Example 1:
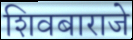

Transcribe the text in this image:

शिवबाराजे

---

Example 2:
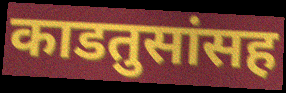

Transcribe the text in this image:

काडतुसांसह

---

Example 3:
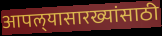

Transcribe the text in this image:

आपल्यासारख्यांसाठी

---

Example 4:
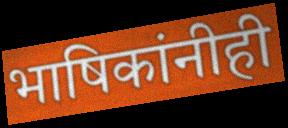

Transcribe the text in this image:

भाषिकांनीही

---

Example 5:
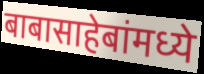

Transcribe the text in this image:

बाबासाहेबांमध्ये